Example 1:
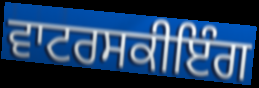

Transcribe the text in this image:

ਵਾਟਰਸਕੀਇੰਗ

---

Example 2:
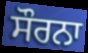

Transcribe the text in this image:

ਸੌਰਨਾ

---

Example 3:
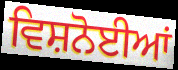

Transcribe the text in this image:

ਵਿਸ਼ਨੋਈਆਂ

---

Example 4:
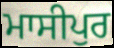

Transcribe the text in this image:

ਮਾਸੀਪੁਰ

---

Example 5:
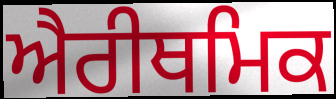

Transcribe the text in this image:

ਐਰੀਥਮਿਕ